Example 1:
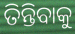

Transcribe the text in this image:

ତିନ୍ତିବାକୁ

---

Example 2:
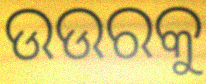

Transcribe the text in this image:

ଉଉରକୁ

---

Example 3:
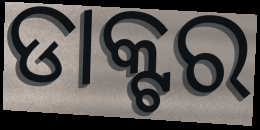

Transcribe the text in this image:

ଡାକ୍ଟର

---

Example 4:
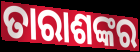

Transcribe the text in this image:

ତାରାଶଙ୍କର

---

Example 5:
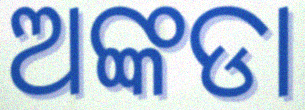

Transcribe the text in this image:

ଅଙ୍କଡା